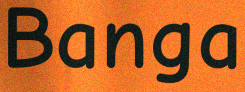
Banga